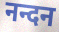
नन्दन